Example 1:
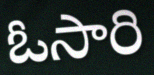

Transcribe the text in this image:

ఓసారి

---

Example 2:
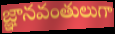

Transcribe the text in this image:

జ్ఞానవంతులుగా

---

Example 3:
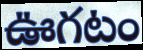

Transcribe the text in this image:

ఊగటం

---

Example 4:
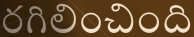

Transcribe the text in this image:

రగిలించింది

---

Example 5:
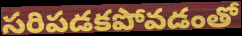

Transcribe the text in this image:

సరిపడకపోవడంతో